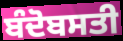
ਬੰਦੋਬਸਤੀ